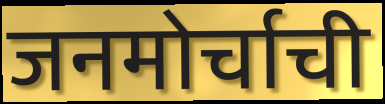
जनमोर्चाची